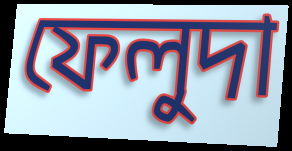
ফেলুদা